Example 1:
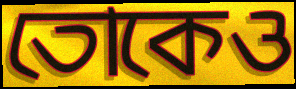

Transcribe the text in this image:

তোকেও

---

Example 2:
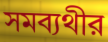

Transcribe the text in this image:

সমব্যথীর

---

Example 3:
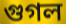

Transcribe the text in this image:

গুগল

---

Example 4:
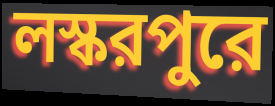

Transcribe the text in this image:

লস্করপুরে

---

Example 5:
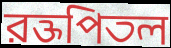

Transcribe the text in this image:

রক্তপিতল